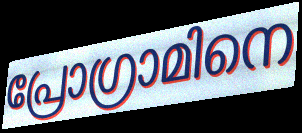
പ്രോഗ്രാമിനെ